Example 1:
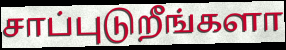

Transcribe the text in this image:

சாப்புடுறீங்களா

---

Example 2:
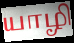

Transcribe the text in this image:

யாழி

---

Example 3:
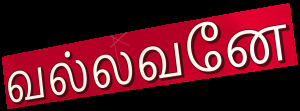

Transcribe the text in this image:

வல்லவனே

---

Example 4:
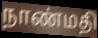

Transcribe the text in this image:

நாண்மதி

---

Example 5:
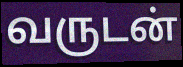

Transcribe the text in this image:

வருடன்